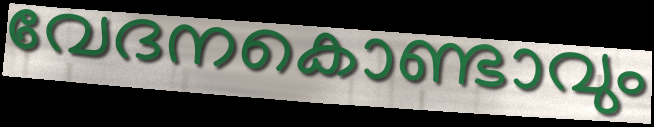
വേദനകൊണ്ടാവും